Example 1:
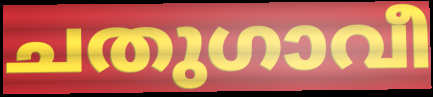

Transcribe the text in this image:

ചതുഗാവീ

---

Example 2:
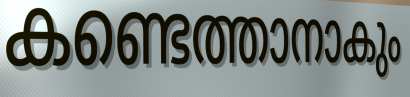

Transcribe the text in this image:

കണ്ടെത്താനാകും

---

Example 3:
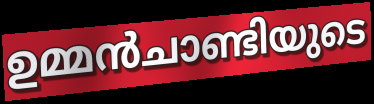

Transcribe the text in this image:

ഉമ്മൻചാണ്ടിയുടെ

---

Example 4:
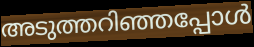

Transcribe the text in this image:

അടുത്തറിഞ്ഞപ്പോൾ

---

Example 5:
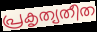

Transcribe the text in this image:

പ്രകൃത്യതീത